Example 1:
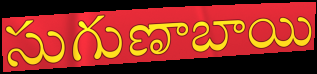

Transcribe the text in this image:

సుగుణాబాయి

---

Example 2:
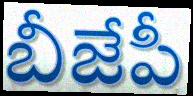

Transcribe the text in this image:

బీజేపీ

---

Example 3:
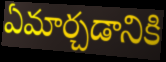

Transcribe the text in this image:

ఏమార్చడానికి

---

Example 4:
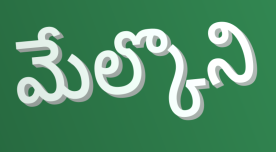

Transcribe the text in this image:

మేల్కొని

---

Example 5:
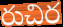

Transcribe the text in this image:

రుచిర